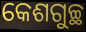
କେଶଗୁଚ୍ଛ